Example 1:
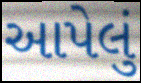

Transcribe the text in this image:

આપેલું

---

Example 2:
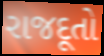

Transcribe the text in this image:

રાજદૂતો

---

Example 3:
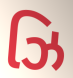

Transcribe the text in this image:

ઝિ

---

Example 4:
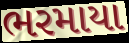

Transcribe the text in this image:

ભરમાયા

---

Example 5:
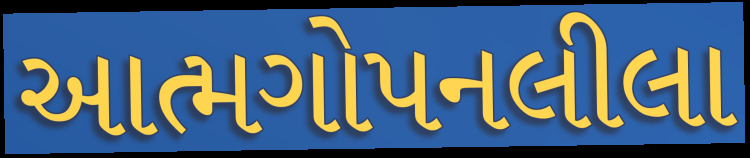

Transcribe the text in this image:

આત્મગોપનલીલા